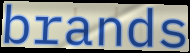
brands